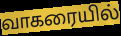
வாகரையில்